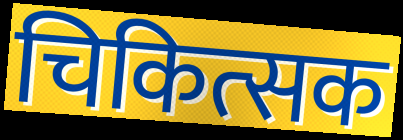
चिकित्‍सक